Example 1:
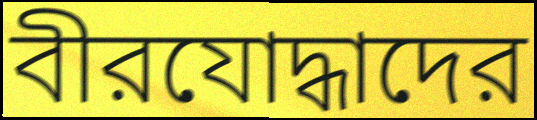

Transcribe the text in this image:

বীরযোদ্ধাদের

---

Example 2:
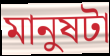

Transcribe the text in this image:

মানুষটা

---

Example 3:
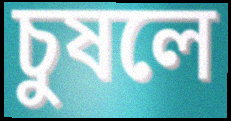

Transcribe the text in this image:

চুষলে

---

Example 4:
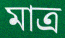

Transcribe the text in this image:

মাত্র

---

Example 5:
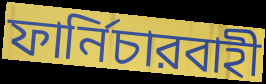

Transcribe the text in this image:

ফার্নিচারবাহী